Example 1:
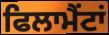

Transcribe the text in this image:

ਫਿਲਾਮੈਂਟਾਂ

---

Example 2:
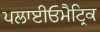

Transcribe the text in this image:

ਪਲਾਈਓਮੈਟ੍ਰਿਕ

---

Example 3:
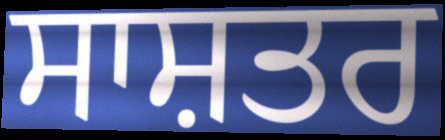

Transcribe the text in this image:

ਸਾਸ਼ਤਰ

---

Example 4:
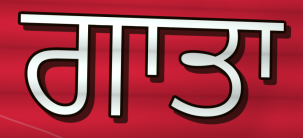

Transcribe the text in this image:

ਗਾਤਾ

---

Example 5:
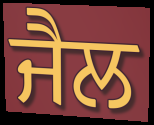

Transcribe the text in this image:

ਜੈਲ